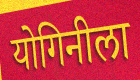
योगिनीला